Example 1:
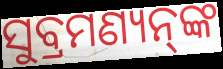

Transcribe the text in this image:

ସୁବ୍ରମଣ୍ୟନ୍‌ଙ୍କ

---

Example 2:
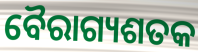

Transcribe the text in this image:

ବୈରାଗ୍ୟଶତକ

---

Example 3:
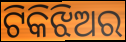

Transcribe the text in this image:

ଟିକିଝିଅର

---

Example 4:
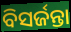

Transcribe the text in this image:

ବିସର୍ଜନ୍ତା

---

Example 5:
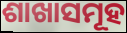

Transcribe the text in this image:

ଶାଖାସମୂହ